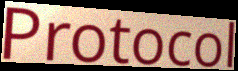
Protocol